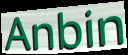
Anbin